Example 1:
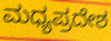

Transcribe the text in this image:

ಮಧ್ಯಪ್ರದೇಶ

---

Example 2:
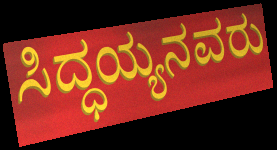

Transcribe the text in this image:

ಸಿದ್ಧಯ್ಯನವರು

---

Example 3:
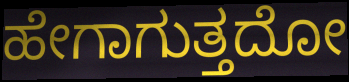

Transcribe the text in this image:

ಹೇಗಾಗುತ್ತದೋ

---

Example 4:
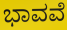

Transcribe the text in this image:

ಭಾವವೆ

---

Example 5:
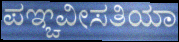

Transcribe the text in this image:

ಪಞ್ಚವೀಸತಿಯಾ